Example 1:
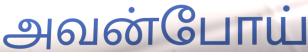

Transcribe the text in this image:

அவன்போய்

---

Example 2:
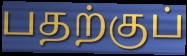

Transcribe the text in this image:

பதற்குப்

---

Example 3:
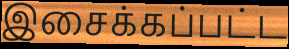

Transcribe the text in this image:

இசைக்கப்பட்ட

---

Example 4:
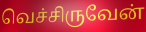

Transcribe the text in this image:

வெச்சிருவேன்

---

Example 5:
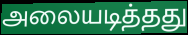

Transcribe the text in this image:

அலையடித்தது